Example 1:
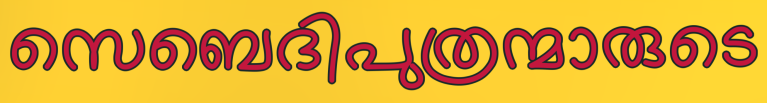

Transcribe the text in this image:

സെബെദിപുത്രന്മാരുടെ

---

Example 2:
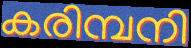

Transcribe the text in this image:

കരിമ്പനി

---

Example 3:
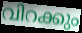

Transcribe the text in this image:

വിറക്കും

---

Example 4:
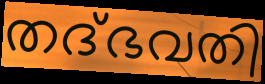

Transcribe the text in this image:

തദ്ഭവതി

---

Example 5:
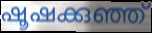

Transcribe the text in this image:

ഷൂഷക്കുഞ്ഞ്